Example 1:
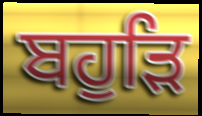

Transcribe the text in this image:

ਬਹੁੜਿ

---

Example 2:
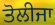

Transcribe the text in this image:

ਤੋਲੀਜਾ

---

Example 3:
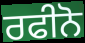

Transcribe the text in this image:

ਰਫੀਨੋ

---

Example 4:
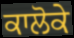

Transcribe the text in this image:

ਕਾਲੋਕੇ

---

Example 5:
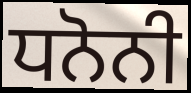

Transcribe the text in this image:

ਧਨੋਨੀ